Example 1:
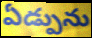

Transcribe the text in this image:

ఏడ్పును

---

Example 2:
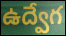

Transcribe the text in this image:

ఉద్వేగ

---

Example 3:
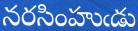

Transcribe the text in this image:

నరసింహుఁడు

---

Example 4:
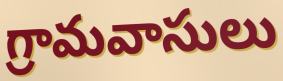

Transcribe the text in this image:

గ్రామవాసులు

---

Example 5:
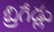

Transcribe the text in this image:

బ్రిగేడ్లు